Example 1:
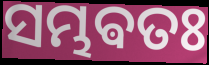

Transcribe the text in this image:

ସମ୍ଭଵତଃ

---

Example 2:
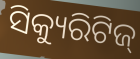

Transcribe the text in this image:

ସିକ୍ୟୁରିଟିଜ୍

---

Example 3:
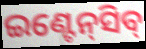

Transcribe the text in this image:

ଇଣ୍ଟେନ୍‍ସିବ୍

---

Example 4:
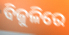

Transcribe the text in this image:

ବିଜୁଳିରେ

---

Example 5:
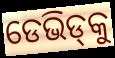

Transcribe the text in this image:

ଡେଭିଡ୍‍କୁ